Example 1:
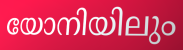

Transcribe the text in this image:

യോനിയിലും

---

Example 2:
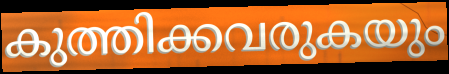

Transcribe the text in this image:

കുത്തിക്കവരുകയും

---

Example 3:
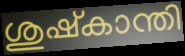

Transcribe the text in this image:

ശുഷ്കാന്തി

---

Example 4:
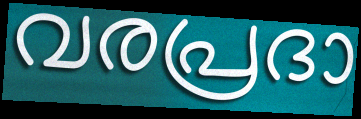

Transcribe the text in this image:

വരപ്രദാ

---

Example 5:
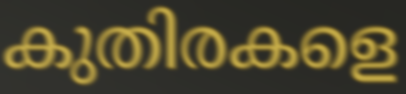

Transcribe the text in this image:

കുതിരകളെ